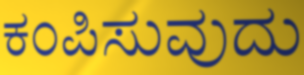
ಕಂಪಿಸುವುದು